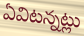
ఏవిటన్నట్లు